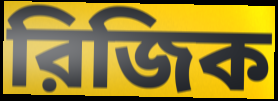
রিজিক